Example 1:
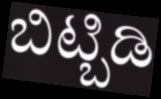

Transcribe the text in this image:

ಬಿಟ್ಬಿಡಿ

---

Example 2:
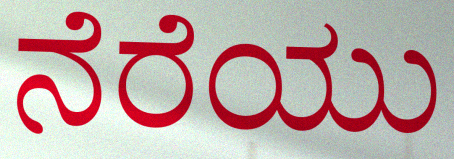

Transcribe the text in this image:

ನೆರೆಯು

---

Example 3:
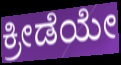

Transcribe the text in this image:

ಕ್ರೀಡೆಯೇ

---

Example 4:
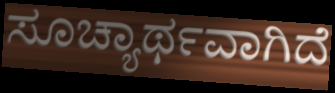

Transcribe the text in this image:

ಸೂಚ್ಯಾರ್ಥವಾಗಿದೆ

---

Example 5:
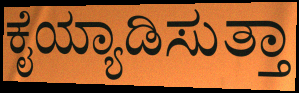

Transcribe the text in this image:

ಕೈಯ್ಯಾಡಿಸುತ್ತಾ